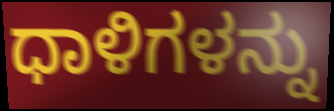
ಧಾಳಿಗಳನ್ನು